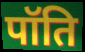
पॉति